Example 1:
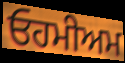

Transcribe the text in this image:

ਓਹਮੀਅਮ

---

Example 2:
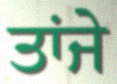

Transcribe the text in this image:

ਤਾਂਜੇ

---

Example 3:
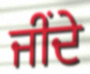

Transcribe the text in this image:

ਜੀਂਦੇ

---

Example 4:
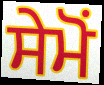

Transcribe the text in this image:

ਸੇਮੋਂ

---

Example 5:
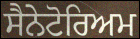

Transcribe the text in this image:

ਸੈਨੇਟੋਰਿਅਮ